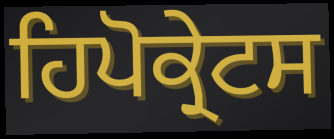
ਹਿਪੋਕ੍ਰੇਟਸ